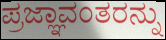
ಪ್ರಜ್ಞಾವಂತರನ್ನು